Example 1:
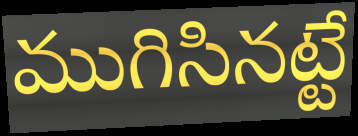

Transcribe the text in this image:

ముగిసినట్టే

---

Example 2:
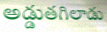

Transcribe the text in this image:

అడ్డుతగిలాడు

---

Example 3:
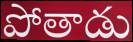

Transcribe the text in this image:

పోతాడు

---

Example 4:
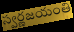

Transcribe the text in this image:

స్వర్ణజయంతి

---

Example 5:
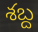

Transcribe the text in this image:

శబ్ద